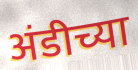
अंडीच्या